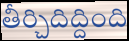
తీర్చిదిద్దింది